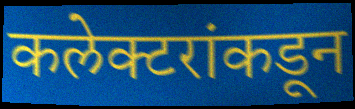
कलेक्टरांकडून